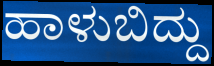
ಹಾಳುಬಿದ್ದು